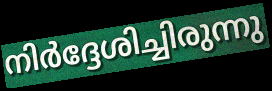
നിർദ്ദേശിച്ചിരുന്നു